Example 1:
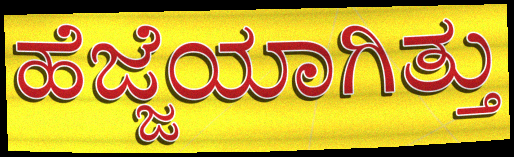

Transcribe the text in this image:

ಹೆಜ್ಜೆಯಾಗಿತ್ತು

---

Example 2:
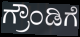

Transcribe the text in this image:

ಗ್ರೌಂಡಿಗೆ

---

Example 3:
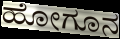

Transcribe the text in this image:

ಹೋಗೂನ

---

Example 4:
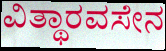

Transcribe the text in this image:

ವಿತ್ಥಾರವಸೇನ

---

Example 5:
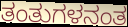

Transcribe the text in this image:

ತಂತುಗಳನಂತ